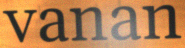
vanan